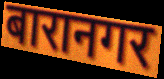
बारानगर